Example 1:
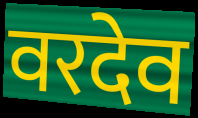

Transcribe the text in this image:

वरदेव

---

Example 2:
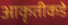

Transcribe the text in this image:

आकृतीकडे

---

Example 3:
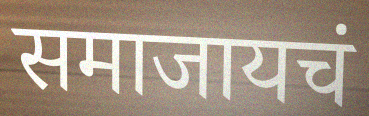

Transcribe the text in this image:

समाजायचं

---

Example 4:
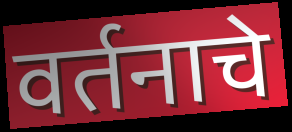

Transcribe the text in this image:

वर्तनाचे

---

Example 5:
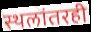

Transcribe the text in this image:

स्थलांतरही